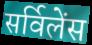
सर्विलेंस